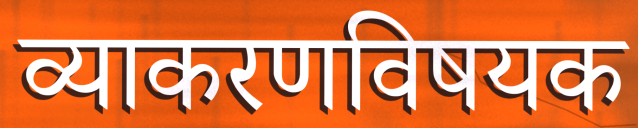
व्याकरणविषयक